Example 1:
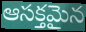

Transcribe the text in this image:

ఆసక్తమైన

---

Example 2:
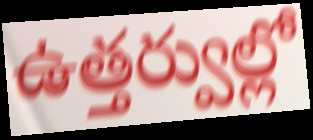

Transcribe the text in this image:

ఉత్తర్వుల్లో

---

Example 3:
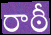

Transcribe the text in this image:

రాఠీ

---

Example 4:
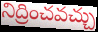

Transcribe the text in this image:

నిద్రించవచ్చు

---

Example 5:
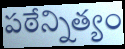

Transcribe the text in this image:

పఠేన్నిత్యం